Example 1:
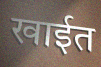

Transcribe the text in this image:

खाईत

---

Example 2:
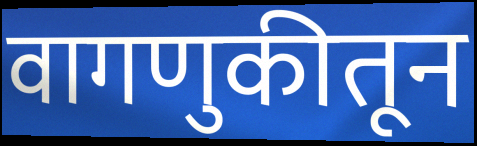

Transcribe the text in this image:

वागणुकीतून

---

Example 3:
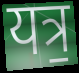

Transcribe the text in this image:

यत्र॒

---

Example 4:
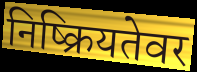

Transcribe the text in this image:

निष्क्रियतेवर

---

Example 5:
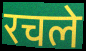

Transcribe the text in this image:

रचले